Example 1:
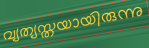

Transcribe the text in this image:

വ്യത്യസ്തയായിരുന്നു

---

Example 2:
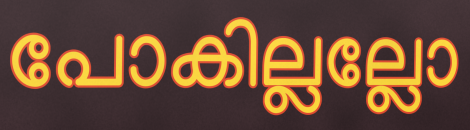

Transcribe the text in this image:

പോകില്ലല്ലോ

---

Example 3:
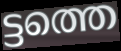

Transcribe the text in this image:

ട്ടത്തെ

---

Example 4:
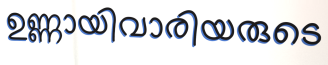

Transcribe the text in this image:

ഉണ്ണായിവാരിയരുടെ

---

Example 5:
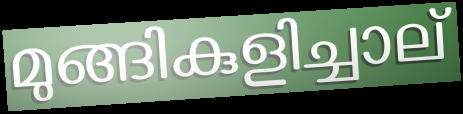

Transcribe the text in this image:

മുങ്ങികുളിച്ചാല്